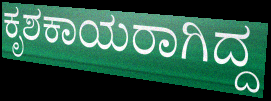
ಕೃಶಕಾಯರಾಗಿದ್ದ